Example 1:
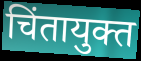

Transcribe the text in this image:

चिंतायुक्त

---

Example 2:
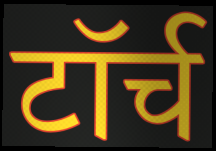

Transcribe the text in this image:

टॉर्च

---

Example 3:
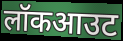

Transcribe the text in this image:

लॉकआउट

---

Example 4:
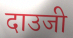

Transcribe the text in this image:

दाउजी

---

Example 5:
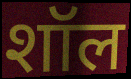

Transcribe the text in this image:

शॉल